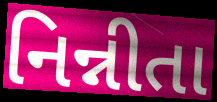
નિન્નીતા